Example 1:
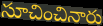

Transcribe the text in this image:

సూచించినారు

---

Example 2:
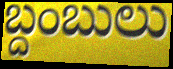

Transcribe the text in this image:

బ్దంబులు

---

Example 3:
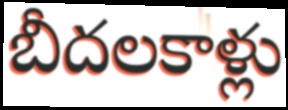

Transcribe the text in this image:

బీదలకాళ్లు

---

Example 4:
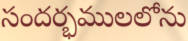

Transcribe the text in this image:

సందర్భములలోను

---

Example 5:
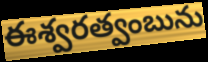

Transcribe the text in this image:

ఈశ్వరత్వంబును